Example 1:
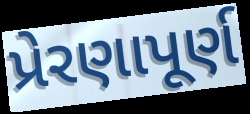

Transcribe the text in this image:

પ્રેરણાપૂર્ણ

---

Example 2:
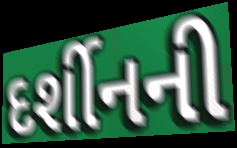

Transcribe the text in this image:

દર્શીનની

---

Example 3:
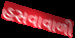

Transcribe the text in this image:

હસવાવાળી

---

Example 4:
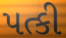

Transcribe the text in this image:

પત્કી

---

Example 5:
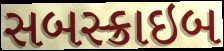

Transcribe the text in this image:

સબસ્ક્રાઇબ